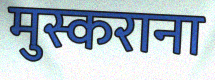
मुस्कराना